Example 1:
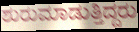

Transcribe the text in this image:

ಶುರುಮಾಡುತ್ತಿದ್ದರು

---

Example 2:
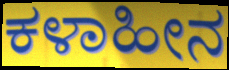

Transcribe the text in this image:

ಕಳಾಹೀನ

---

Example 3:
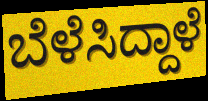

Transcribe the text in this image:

ಬೆಳೆಸಿದ್ದಾಳೆ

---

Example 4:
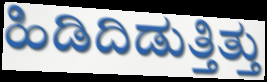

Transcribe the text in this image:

ಹಿಡಿದಿಡುತ್ತಿತ್ತು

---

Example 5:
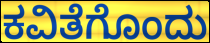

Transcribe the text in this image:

ಕವಿತೆಗೊಂದು